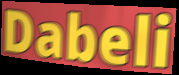
Dabeli